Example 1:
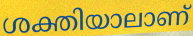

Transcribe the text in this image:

ശക്തിയാലാണ്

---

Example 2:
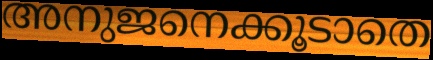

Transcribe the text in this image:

അനുജനെക്കൂടാതെ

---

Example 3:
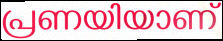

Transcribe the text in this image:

പ്രണയിയാണ്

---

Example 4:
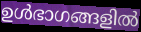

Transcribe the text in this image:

ഉൾഭാഗങ്ങളിൽ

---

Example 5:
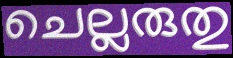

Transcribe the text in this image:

ചെല്ലരുതു